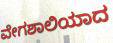
ವೇಗಶಾಲಿಯಾದ